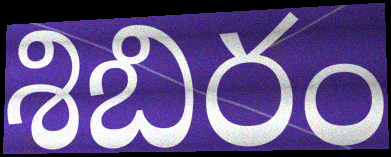
శిబిరం